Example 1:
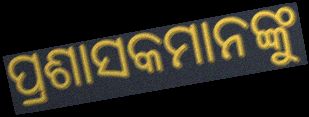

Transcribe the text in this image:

ପ୍ରଶାସକମାନଙ୍କୁ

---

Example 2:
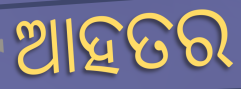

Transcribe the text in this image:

ଆହତର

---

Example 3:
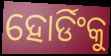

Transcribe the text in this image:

ହୋର୍ଡିଂକୁ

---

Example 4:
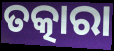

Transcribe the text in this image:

ତତ୍କାରା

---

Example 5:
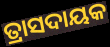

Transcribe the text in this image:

ତ୍ରାସଦାୟକ